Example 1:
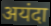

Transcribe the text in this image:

अयंदा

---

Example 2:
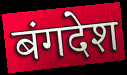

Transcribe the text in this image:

बंगदेश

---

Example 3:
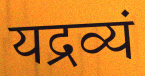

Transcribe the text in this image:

यद्रव्यं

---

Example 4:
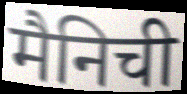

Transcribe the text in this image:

मैनिची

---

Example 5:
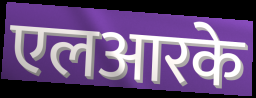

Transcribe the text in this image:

एलआरके